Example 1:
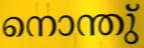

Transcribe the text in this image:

നൊന്തു്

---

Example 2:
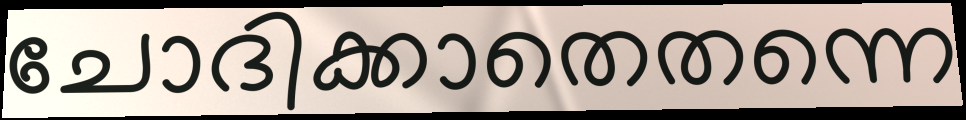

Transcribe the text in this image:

ചോദിക്കാതെതന്നെ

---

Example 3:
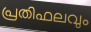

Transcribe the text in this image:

പ്രതിഫലവും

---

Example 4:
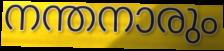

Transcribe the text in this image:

നന്തനാരും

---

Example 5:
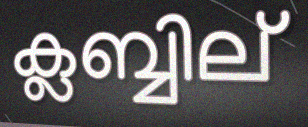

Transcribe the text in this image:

ക്ലബ്ബില്